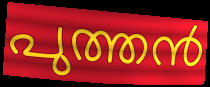
പുത്തൻ